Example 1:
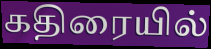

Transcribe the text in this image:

கதிரையில்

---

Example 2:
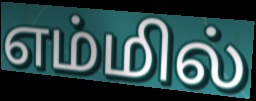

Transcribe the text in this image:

எம்மில்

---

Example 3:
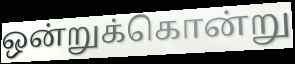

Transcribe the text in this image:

ஒன்றுக்கொன்று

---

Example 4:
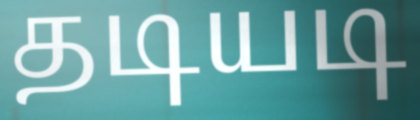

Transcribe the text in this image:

தடியடி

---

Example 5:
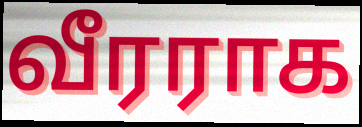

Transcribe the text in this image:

வீரராக